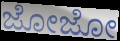
ಜೋಜೋ